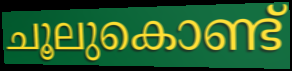
ചൂലുകൊണ്ട്